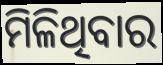
ମିଳିଥିବାର